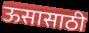
ऊसासाठी